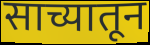
साच्यातून